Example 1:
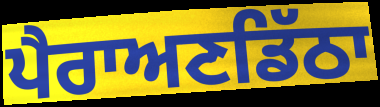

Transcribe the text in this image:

ਪੈਰਾਅਣਡਿੱਠਾ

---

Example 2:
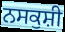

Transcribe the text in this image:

ਨਸਕੁਸ਼ੀ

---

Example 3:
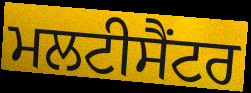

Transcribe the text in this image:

ਮਲਟੀਸੈਂਟਰ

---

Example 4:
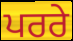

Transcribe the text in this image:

ਪਰਰੇ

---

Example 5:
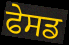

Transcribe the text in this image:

ਫੇਸਡ